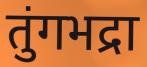
तुंगभद्रा